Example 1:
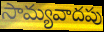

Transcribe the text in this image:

సామ్యవాదపు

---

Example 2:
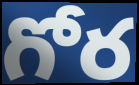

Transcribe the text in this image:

గోర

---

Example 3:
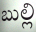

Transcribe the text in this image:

బుల్లి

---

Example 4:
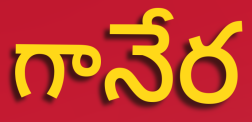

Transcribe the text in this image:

గానేర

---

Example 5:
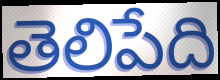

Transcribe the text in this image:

తెలిపేది